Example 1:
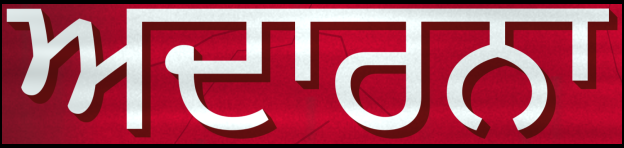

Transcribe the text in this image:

ਅਦਾਰਨਾ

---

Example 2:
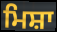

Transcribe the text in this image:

ਮਿਸ਼ਾ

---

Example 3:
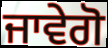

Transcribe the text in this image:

ਜਾਵੇਗੋ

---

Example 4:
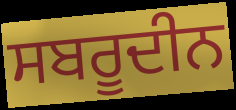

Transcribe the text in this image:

ਸਬਰੂਦੀਨ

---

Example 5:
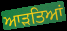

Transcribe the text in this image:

ਆੜਤਿਆਂ